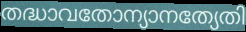
തദ്ധാവതോന്യാനത്യേതി